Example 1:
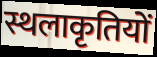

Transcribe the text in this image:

स्थलाकृतियों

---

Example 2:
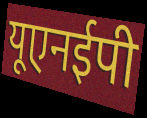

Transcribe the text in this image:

यूएनईपी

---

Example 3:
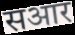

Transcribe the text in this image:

सआर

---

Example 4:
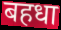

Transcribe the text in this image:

बहधा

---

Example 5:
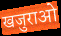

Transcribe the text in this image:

खजुराओ